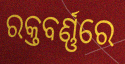
ରକ୍ତବର୍ଣ୍ଣରେ